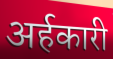
अर्हकारी